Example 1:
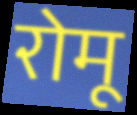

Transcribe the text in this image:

रोमू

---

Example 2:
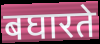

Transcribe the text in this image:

बघारते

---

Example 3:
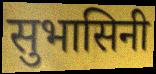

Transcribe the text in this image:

सुभासिनी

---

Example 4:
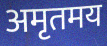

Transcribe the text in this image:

अमृतमय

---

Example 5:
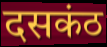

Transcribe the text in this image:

दसकंठ